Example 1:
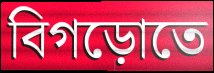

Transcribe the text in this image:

বিগড়োতে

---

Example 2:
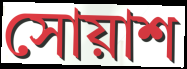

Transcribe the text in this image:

সোয়াশ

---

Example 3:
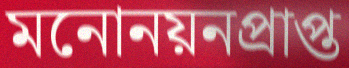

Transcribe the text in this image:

মনোনয়নপ্রাপ্ত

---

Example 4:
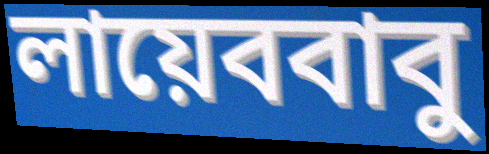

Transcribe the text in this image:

লায়েববাবু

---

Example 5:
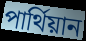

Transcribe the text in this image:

পার্থিয়ান